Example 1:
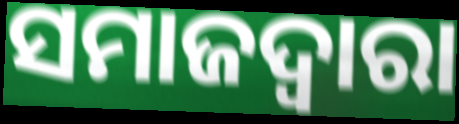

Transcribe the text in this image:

ସମାଜଦ୍ଵାରା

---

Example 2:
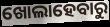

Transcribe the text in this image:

ଖୋଲାହେବାରୁ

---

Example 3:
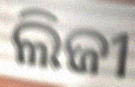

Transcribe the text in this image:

ଲିଜୀ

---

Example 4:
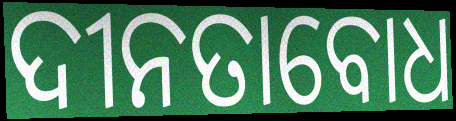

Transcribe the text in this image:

ଦୀନତାବୋଧ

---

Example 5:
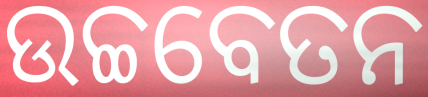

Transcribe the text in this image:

ଉଚ୍ଚବେତନ